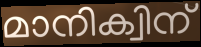
മാനിക്വിന്